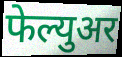
फेल्युअर